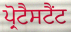
ਪ੍ਰੋਟੈਸਟੈਂਟ